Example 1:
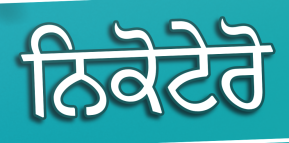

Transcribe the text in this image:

ਨਿਕੋਟੇਰੋ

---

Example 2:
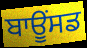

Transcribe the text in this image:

ਬਾਊਂਸਡ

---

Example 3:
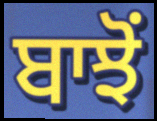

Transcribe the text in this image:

ਬਾਝੋਂ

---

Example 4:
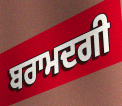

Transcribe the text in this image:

ਬਰਾਮਦਗੀ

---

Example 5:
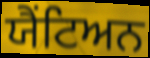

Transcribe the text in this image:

ਯੈਂਟਿਅਨ